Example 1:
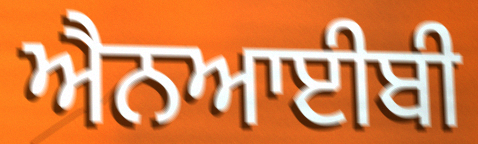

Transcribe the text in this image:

ਐਨਆਈਬੀ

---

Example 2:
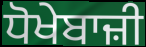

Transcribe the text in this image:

ਧੋਖੇਬਾਜ਼ੀ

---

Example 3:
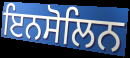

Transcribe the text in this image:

ਇਨਸੋਲਿਨ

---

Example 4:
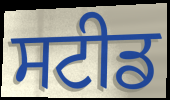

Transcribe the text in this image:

ਸਟੀਡ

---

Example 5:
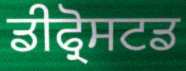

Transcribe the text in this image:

ਡੀਫ੍ਰੋਸਟਡ